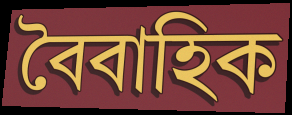
বৈবাহিক